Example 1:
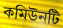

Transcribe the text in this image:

কমিউনটি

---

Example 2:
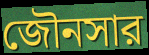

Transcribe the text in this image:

জৌনসার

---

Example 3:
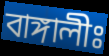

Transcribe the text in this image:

বাঙ্গালীঃ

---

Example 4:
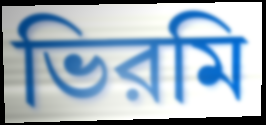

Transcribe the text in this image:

ভিরমি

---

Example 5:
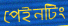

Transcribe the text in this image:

পেইনটিং